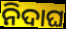
ନିଦାଘ